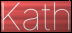
Kath